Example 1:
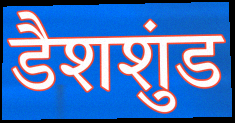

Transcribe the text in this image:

डैशशुंड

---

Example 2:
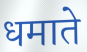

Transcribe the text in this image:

धमाते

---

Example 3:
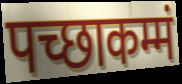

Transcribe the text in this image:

पच्छाकम्मं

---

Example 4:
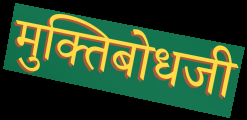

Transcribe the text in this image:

मुक्तिबोधजी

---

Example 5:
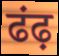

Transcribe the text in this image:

ढंढ़